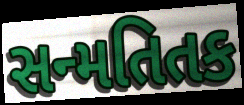
સન્મતિતક